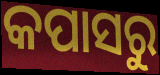
କପାସରୁ